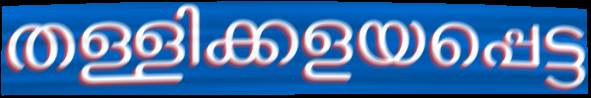
തള്ളിക്കളയപ്പെട്ട